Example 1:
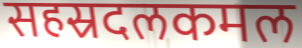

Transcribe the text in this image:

सहस्रदलकमल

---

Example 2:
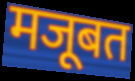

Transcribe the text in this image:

मजूबत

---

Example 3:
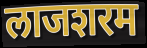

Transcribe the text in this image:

लाजशरम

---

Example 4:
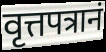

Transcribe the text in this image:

वृत्तपत्रानं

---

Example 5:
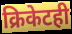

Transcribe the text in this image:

क्रिकेटही